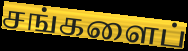
சங்களைப்